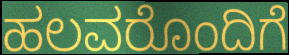
ಹಲವರೊಂದಿಗೆ